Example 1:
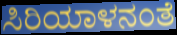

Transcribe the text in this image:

ಸಿರಿಯಾಳನಂತೆ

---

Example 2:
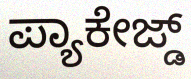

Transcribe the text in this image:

ಪ್ಯಾಕೇಜ್ಡ್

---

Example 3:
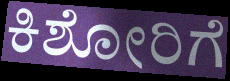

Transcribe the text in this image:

ಕಿಶೋರಿಗೆ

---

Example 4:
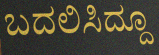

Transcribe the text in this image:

ಬದಲಿಸಿದ್ದೂ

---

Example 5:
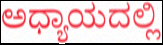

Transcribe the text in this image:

ಅಧ್ಯಾಯದಲ್ಲಿ